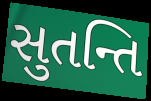
સુતન્તિ